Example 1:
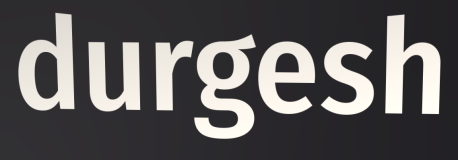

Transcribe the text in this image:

durgesh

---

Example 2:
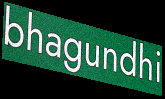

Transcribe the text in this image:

bhagundhi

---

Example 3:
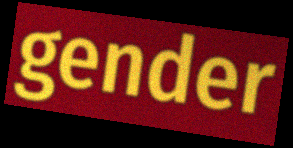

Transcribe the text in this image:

gender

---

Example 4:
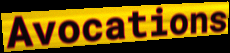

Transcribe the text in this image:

Avocations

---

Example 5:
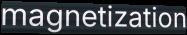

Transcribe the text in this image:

magnetization